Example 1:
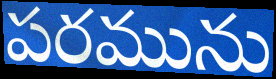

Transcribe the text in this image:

పరమును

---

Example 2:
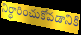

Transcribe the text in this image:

నిర్ధారించుకోవడానికి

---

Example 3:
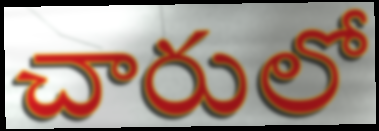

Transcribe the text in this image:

చారులో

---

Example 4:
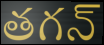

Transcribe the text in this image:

తగన్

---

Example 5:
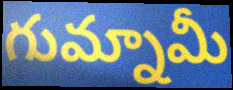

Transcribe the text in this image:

గుమ్నామీ